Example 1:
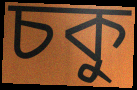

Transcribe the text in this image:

চকু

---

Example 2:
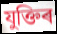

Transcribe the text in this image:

যুক্তিৰ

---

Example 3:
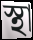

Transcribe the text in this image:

স্থা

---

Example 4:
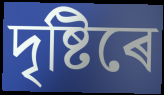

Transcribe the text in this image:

দৃষ্টিৰে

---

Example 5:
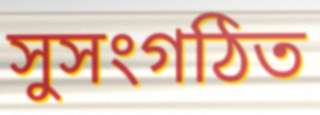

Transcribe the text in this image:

সুসংগঠিত